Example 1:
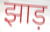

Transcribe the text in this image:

झाड़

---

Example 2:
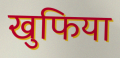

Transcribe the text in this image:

खुफिया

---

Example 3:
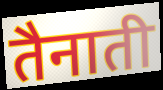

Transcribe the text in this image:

तैनाती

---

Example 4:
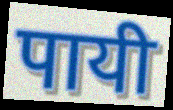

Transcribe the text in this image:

पायी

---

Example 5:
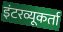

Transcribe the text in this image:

इंटरव्यूकर्ता